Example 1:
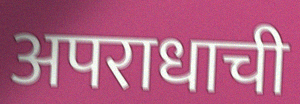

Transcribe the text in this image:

अपराधाची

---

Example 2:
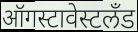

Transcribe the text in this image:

ऑगस्टावेस्टलँड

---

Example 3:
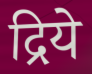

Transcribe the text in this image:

द्रिये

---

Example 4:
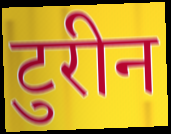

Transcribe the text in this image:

टुरीन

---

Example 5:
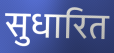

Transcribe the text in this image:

सुधारित